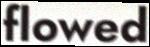
flowed